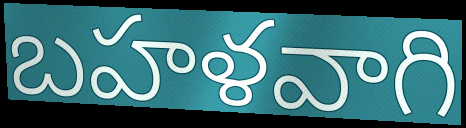
బహళవాగి